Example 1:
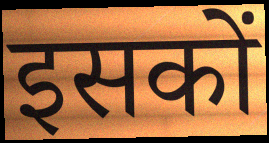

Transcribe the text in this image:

इसकों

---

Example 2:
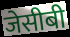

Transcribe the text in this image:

जेसीबी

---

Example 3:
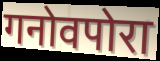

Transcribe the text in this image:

गनोवपोरा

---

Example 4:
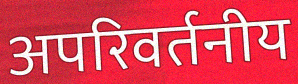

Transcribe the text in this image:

अपरिवर्तनीय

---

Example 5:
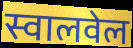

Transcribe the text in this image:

स्वालवेल